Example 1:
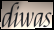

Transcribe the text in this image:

diwas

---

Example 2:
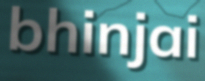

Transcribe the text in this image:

bhinjai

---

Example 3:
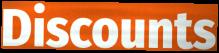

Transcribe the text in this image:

Discounts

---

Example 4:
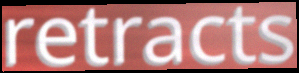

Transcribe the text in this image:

retracts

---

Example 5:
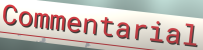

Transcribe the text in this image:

Commentarial